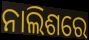
ନାଲିଶରେ